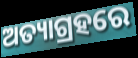
ଅତ୍ୟାଗ୍ରହରେ